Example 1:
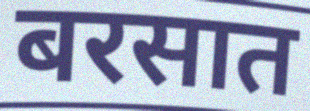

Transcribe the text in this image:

बरसात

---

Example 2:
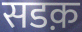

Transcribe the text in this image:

सडक़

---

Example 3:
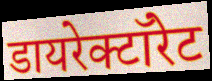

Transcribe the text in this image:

डायरेक्टॉरेट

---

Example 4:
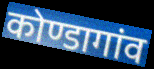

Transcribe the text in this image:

कोण्डागांव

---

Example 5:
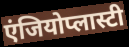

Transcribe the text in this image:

एंजियोप्लास्टी